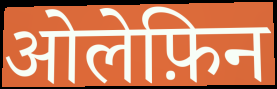
ओलेफ़िन